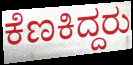
ಕೆಣಕಿದ್ದರು